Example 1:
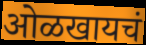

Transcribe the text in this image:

ओळखायचं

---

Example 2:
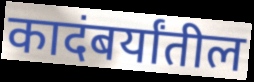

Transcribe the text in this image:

कादंबर्यांतील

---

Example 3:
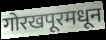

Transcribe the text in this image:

गोरखपूरमधून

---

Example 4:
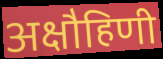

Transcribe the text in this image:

अक्षौहिणी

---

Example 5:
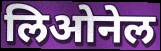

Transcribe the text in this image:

लिओनेल